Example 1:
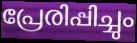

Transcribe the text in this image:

പ്രേരിപ്പിച്ചും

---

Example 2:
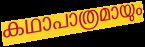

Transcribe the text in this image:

കഥാപാത്രമായും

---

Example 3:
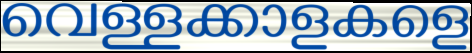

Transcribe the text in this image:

വെള്ളക്കാളകളെ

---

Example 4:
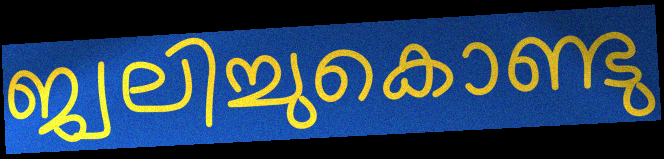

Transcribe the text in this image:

ജ്വലിച്ചുകൊണ്ടു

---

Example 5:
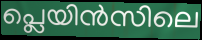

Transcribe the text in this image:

പ്ലെയിൻസിലെ